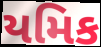
યમિક